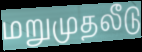
மறுமுதலீடு